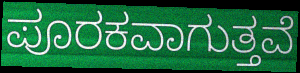
ಪೂರಕವಾಗುತ್ತವೆ